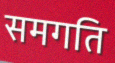
समगति